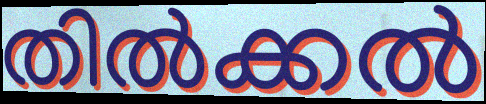
തിൽക്കൽ